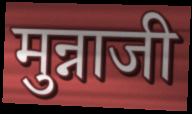
मुन्नाजी